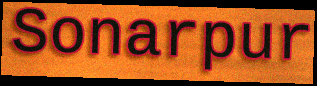
Sonarpur